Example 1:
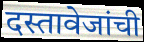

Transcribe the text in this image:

दस्तावेजांची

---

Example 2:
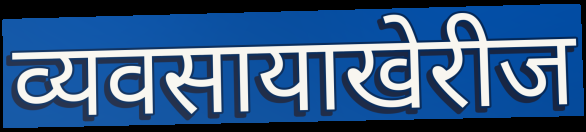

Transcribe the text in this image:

व्यवसायाखेरीज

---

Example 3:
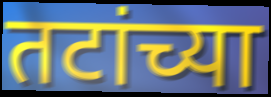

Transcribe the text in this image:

तटांच्या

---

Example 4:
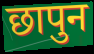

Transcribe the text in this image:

छापुन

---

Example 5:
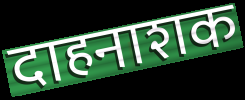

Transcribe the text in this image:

दाहनाशक